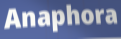
Anaphora